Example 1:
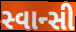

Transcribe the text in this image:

સ્વાન્સી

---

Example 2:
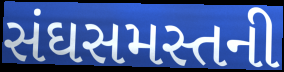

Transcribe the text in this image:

સંઘસમસ્તની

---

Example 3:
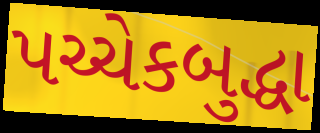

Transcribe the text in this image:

પચ્ચેકબુદ્ધા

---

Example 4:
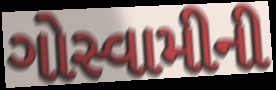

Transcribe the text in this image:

ગોસ્વામીની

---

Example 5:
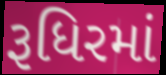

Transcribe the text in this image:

રૂધિરમાં